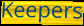
Keepers